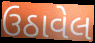
ઉઠાવેલ